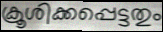
ക്രൂശിക്കപ്പെട്ടതും